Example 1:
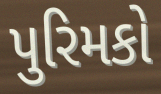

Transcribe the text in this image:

પુરિમકો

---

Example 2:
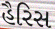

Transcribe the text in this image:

હૈરિસ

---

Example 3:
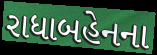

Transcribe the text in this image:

રાધાબહેનના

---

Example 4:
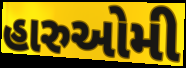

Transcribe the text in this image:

હારુઓમી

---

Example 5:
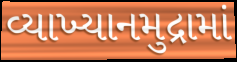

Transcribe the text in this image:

વ્યાખ્યાનમુદ્રામાં